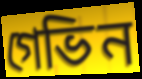
গেভিন